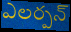
ఎలర్పన్